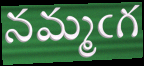
నమ్మఁగ